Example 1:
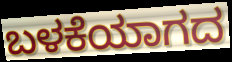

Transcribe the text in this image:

ಬಳಕೆಯಾಗದ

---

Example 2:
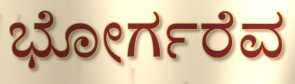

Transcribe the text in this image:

ಭೋರ್ಗರೆವ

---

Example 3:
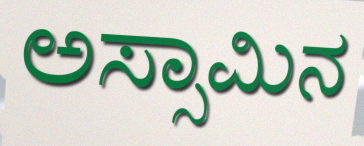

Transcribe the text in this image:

ಅಸ್ಸಾಮಿನ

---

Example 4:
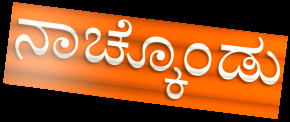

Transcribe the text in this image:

ನಾಚ್ಕೊಂಡು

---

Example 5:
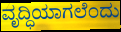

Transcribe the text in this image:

ವೃದ್ಧಿಯಾಗಲೆಂದು